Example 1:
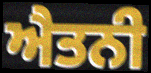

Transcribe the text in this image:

ਐਤਨੀ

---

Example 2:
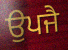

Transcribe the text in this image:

ਉਪਜੈ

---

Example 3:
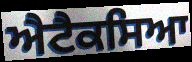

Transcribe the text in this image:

ਐਟੈਕਸਿਆ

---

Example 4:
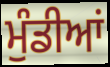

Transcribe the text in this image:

ਮੁੰਡੀਆਂ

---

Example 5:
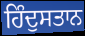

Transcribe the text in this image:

ਹਿੰਦੁਸਤਾਨ